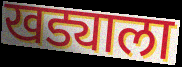
खड्याला